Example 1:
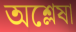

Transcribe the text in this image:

অশ্লেষা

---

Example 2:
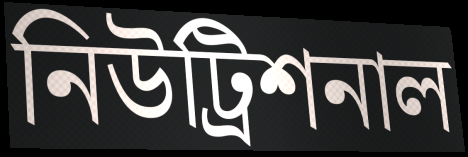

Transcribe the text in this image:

নিউট্রিশনাল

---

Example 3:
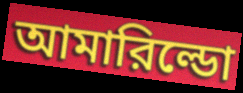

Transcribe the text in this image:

আমারিল্ডো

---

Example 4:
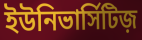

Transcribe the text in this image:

ইউনিভার্সিটিজ়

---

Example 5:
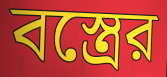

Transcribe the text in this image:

বস্ত্রের